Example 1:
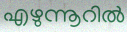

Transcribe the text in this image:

എഴുന്നൂറിൽ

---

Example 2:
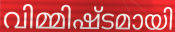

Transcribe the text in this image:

വിമ്മിഷ്ടമായി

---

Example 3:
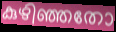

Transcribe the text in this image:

കുഴിഞ്ഞതോ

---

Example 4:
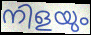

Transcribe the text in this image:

നിളയും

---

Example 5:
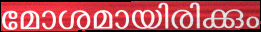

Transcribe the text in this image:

മോശമായിരിക്കും